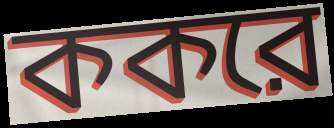
ককরে